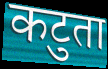
कटुता